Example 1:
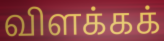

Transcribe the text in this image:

விளக்கக்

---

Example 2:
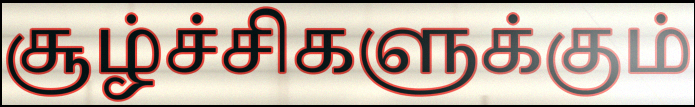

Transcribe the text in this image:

சூழ்ச்சிகளுக்கும்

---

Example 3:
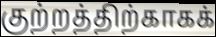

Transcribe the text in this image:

குற்றத்திற்காகக்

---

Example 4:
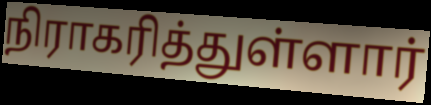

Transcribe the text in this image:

நிராகரித்துள்ளார்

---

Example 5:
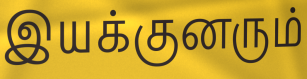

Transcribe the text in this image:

இயக்குனரும்